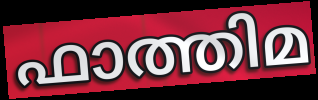
ഫാത്തിമ